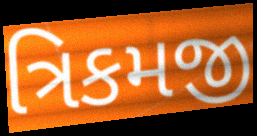
ત્રિકમજી